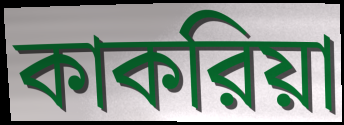
কাকরিয়া